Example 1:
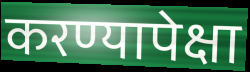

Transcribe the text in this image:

करण्यापेक्षा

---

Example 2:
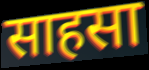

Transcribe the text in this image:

साहसा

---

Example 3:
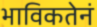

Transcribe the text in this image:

भाविकतेनं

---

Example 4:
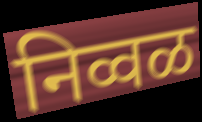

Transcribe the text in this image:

निव्वळ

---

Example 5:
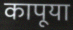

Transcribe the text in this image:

कापूया